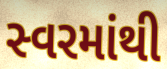
સ્વરમાંથી